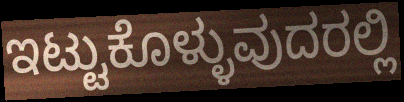
ಇಟ್ಟುಕೊಳ್ಳುವುದರಲ್ಲಿ